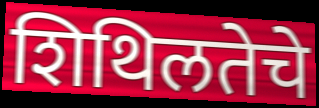
शिथिलतेचे